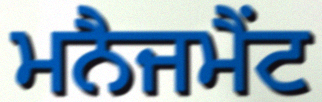
ਮਨੈਜਮੈਂਟ